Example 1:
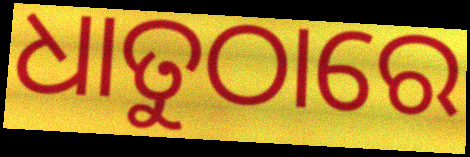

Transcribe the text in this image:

ଧାତୁଠାରେ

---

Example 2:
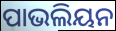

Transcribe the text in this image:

ପାଭଲିୟନ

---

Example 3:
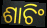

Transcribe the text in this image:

ଶାଚିଂ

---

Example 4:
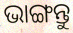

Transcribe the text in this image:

ଭାଙ୍ଗନ୍ତୁ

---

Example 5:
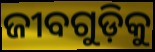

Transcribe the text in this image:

ଜୀବଗୁଡ଼ିକୁ